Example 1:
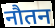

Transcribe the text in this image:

नौतन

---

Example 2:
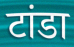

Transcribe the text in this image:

टांडा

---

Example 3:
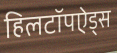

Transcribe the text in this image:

हिलटॉपऐड्स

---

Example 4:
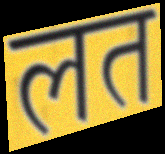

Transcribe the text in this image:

लत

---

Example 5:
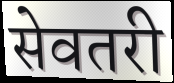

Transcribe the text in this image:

सेवतरी